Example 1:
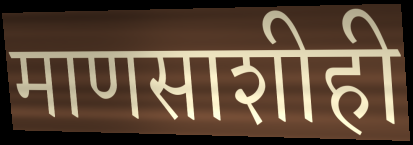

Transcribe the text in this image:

माणसाशीही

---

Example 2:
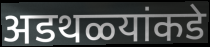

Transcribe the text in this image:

अडथळ्यांकडे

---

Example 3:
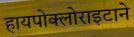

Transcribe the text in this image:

हायपोक्लोराइटाने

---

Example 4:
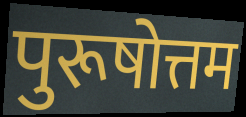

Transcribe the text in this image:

पुरूषोत्तम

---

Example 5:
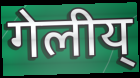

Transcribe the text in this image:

गेलीय्